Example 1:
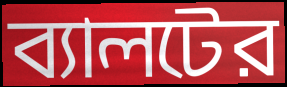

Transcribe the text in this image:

ব্যালটের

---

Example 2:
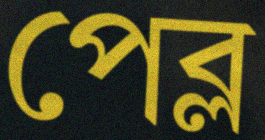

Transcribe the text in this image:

পেব্ল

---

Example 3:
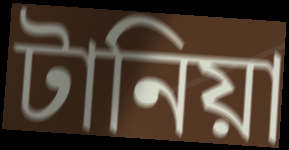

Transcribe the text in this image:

টানিয়া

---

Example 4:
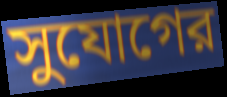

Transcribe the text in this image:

সুযোগের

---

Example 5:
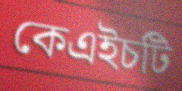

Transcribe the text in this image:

কেএইচটি